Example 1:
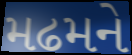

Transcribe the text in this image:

મઢમને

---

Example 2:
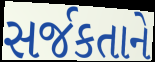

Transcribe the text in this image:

સર્જકતાને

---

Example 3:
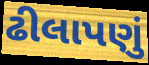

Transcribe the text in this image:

ઢીલાપણું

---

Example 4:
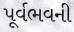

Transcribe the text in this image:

પૂર્વભવની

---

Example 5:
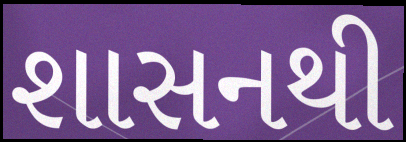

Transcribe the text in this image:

શાસનથી